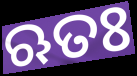
ଋତଃ